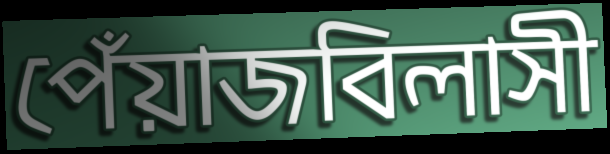
পেঁয়াজবিলাসী